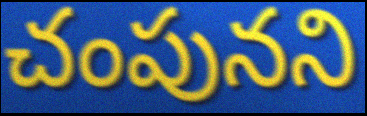
చంపునని